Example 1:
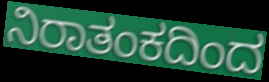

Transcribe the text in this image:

ನಿರಾತಂಕದಿಂದ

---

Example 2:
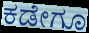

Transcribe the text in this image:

ಕಡೇಗೂ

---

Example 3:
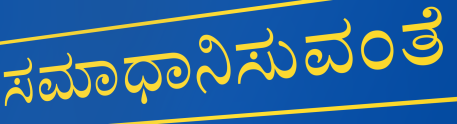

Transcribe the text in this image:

ಸಮಾಧಾನಿಸುವಂತೆ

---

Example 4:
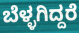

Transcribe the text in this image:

ಬೆಳ್ಳಗಿದ್ದರೆ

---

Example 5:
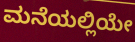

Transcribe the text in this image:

ಮನೆಯಲ್ಲಿಯೇ